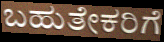
ಬಹುತೇಕರಿಗೆ